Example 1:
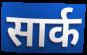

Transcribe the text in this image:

सार्क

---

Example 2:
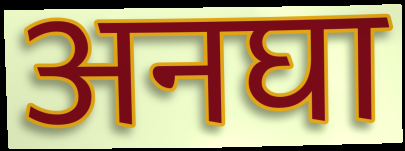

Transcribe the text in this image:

अनघा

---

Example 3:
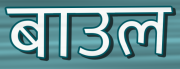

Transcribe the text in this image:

बाउल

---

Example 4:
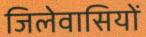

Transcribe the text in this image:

जिलेवासियों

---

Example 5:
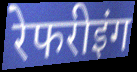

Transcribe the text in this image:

रेफरीइंग